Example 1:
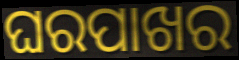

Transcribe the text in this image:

ଘରପାଖର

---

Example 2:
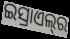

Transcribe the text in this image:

ଇସ୍ରାଏଲ୍‌ର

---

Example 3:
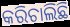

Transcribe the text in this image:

କରିଚାଲିଛି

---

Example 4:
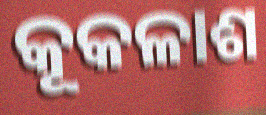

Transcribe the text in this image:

କୂକଳାଶ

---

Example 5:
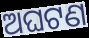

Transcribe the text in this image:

ଅଘଟଣ